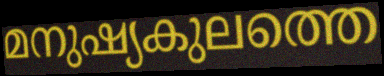
മനുഷ്യകുലത്തെ